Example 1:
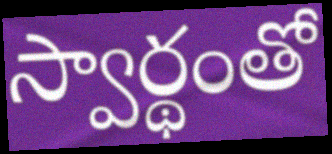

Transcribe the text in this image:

స్వార్థంతో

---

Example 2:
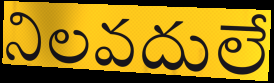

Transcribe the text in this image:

నిలవదులే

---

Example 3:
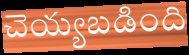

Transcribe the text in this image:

చెయ్యబడింది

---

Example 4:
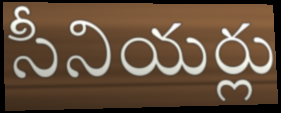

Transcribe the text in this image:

సీనియర్లు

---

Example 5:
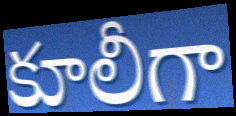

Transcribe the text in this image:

కూలీగా